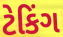
ટેકિંગ